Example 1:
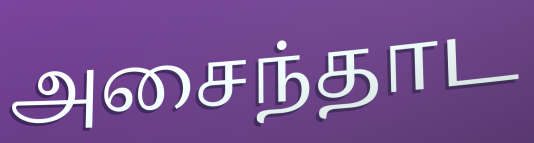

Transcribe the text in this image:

அசைந்தாட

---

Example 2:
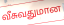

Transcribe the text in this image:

வீசுவதுமான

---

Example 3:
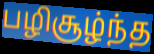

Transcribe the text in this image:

பழிசூழ்ந்த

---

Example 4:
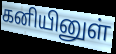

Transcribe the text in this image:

கனியினுள்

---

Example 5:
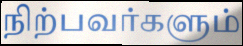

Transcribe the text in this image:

நிற்பவர்களும்